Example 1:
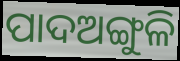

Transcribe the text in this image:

ପାଦଅଙ୍ଗୁଳି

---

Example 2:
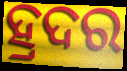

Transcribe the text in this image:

ହ୍ରଦର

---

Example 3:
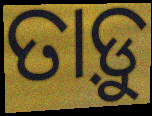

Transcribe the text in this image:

ତାଡ଼ୁ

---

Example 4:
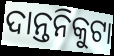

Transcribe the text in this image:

ଦାନ୍ତନିକୁଟା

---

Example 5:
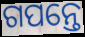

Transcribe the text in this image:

ଗପନ୍ତେ